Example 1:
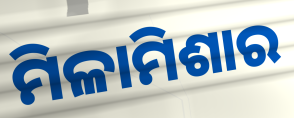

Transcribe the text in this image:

ମିଳାମିଶାର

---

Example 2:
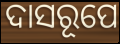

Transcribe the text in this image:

ଦାସରୂପେ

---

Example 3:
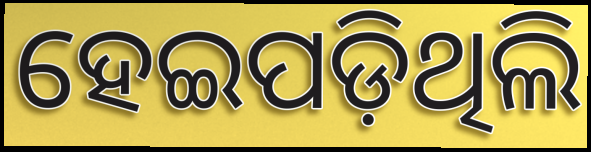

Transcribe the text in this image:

ହେଇପଡ଼ିଥିଲି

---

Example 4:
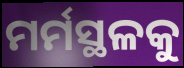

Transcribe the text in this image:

ମର୍ମସ୍ଥଳକୁ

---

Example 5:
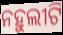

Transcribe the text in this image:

ନହୁଲୀଟି